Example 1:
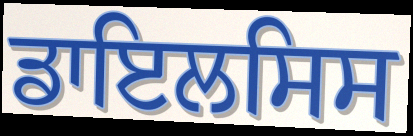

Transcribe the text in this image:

ਡਾਇਲਸਿਸ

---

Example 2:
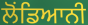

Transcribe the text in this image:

ਲੋਂਡਿਆਨੀ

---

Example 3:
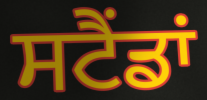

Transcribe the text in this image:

ਸਟੈਂਡਾਂ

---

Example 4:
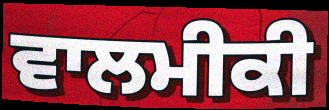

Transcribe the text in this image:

ਵਾਲਮੀਕੀ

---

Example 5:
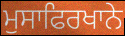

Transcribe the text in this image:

ਮੁਸਾਫਿਰਖਾਨੇ